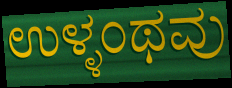
ಉಳ್ಳಂಥವು